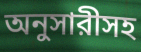
অনুসারীসহ